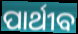
ପାର୍ଥୀବ